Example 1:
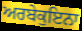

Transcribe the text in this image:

ਅਰਬੇਕੁਇਨਾ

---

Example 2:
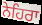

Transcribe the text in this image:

ਨੇਹਿਰਾ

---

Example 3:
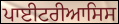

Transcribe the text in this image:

ਪਾਈਟਰੀਆਸਿਸ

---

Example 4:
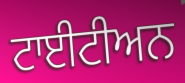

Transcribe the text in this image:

ਟਾਈਟੀਅਨ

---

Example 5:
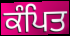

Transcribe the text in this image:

ਕੰਪਿਤ